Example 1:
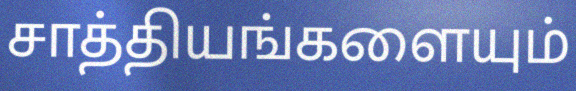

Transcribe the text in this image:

சாத்தியங்களையும்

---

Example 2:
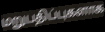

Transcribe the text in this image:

மறுபதிப்புகளாக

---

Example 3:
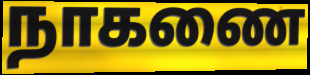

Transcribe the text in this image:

நாகணை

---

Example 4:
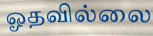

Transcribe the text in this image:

ஓதவில்லை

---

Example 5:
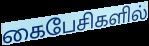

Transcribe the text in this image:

கைபேசிகளில்